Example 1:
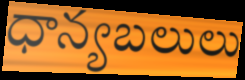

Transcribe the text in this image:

ధాన్యబలులు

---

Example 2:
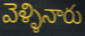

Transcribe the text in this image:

వెళ్ళినారు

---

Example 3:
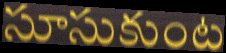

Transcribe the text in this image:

సూసుకుంట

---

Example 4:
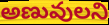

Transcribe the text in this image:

అణువులని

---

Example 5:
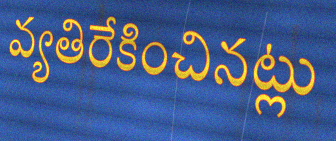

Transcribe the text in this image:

వ్యతిరేకించినట్లు